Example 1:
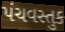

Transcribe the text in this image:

પંચવસ્તુક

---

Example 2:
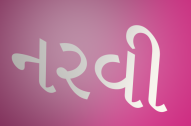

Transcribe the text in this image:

નરવી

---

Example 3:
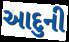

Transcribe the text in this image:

આદુની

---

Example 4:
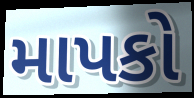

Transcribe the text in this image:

માપકો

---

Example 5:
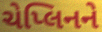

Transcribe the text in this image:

ચેપ્લિનને